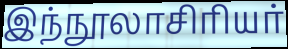
இந்நூலாசிரியர்